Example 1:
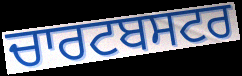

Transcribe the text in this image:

ਚਾਰਟਬਸਟਰ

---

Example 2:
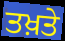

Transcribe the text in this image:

ਤਖ਼ਤੇ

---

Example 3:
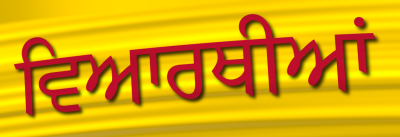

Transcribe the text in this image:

ਵਿਆਰਥੀਆਂ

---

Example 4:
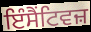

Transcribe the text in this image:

ਇੰਸੈਂਟਿਵਜ਼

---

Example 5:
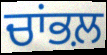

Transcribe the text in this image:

ਚਾਂਭਲ਼